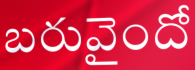
బరువైందో